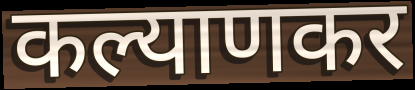
कल्याणकर